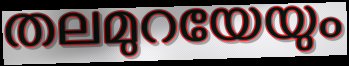
തലമുറയേയും